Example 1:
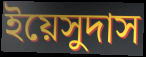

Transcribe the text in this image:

ইয়েসুদাস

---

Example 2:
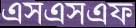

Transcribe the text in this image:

এসএসএফ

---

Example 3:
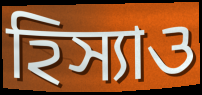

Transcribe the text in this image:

হিস্যাও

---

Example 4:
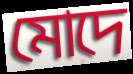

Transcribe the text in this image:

মোদে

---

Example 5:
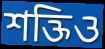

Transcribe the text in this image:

শক্তিও